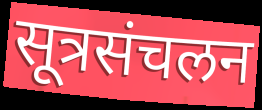
सूत्रसंचलन